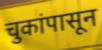
चुकांपासून